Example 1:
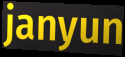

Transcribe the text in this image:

janyun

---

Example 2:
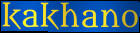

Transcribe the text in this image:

kakhano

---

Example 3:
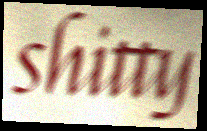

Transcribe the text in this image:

shitty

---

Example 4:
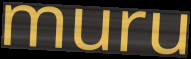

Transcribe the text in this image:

muru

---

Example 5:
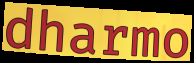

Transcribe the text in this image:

dharmo